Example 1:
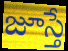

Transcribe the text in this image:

జూస్తే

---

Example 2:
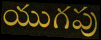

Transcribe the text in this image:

యుగపు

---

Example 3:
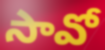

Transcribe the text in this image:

సావో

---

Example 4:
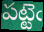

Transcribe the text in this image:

పట్టెఁ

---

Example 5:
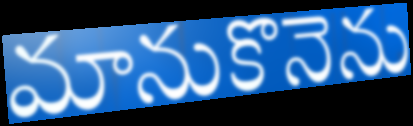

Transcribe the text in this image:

మానుకొనెను